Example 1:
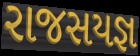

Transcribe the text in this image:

રાજસયજ્ઞ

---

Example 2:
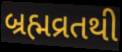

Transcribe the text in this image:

બ્રહ્મવ્રતથી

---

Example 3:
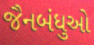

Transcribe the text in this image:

જૈનબંધુઓ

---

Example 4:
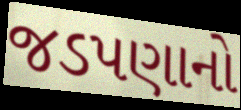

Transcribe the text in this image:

જડપણાનો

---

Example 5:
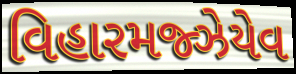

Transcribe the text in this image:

વિહારમજ્ઝેયેવ